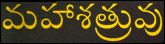
మహాశత్రువు